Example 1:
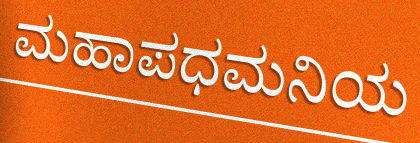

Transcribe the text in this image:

ಮಹಾಪಧಮನಿಯ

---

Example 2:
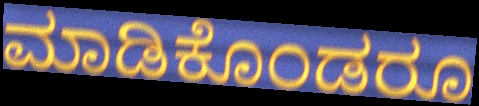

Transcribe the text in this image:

ಮಾಡಿಕೊಂಡರೂ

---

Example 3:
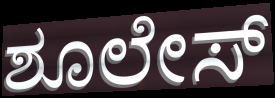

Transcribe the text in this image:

ಶೂಲೇಸ್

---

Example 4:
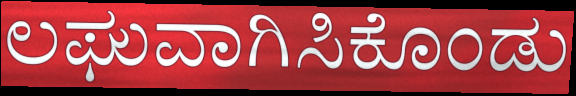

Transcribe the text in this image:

ಲಘುವಾಗಿಸಿಕೊಂಡು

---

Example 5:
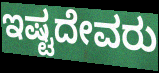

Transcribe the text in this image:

ಇಷ್ಟದೇವರು